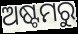
ଅଷ୍ଟମରୁ